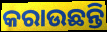
କରାଉଛନ୍ତି